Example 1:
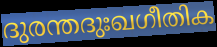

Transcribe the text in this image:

ദുരന്തദുഃഖഗീതിക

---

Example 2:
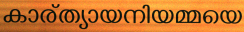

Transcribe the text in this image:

കാര്ത്യായനിയമ്മയെ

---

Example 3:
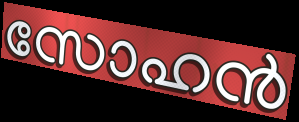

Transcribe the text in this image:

സോഹൻ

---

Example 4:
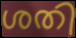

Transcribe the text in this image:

ശതി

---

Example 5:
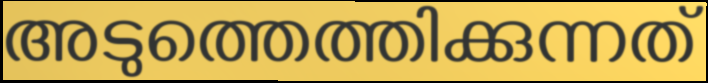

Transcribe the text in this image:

അടുത്തെത്തിക്കുന്നത്